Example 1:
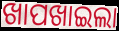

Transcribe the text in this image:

ଖାପଖାଇଲା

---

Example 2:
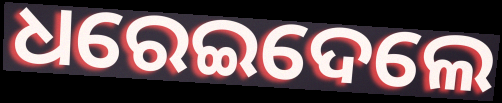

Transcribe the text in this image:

ଧରେଇଦେଲେ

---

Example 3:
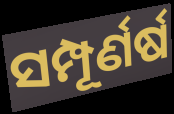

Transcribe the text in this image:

ସମ୍ପୂର୍ଣର୍ଷ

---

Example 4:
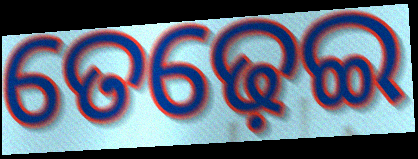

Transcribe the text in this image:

ତେଢ଼େଇ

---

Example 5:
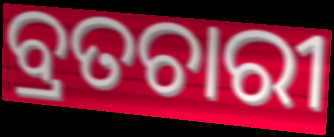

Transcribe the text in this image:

ବ୍ରତଚାରୀ